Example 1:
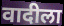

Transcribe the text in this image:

वादीला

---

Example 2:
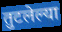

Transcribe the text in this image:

तुटलेल्या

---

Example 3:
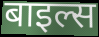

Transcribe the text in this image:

बाइल्स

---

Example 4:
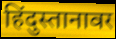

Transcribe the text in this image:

हिंदुस्तानावर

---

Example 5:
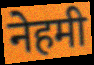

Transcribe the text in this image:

नेहमी